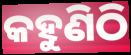
କହୁଣିଠି